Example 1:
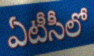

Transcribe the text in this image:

ఏటీసీలో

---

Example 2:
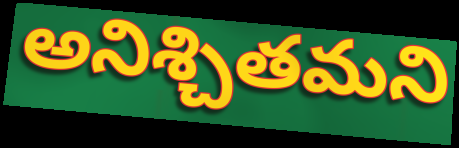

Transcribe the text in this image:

అనిశ్చితమని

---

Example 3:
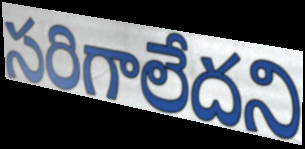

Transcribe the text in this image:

సరిగాలేదని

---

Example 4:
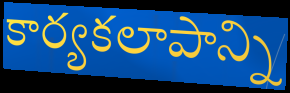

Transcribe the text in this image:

కార్యకలాపాన్ని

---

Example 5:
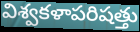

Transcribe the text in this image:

విశ్వకళాపరిషత్తు